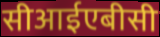
सीआईएबीसी